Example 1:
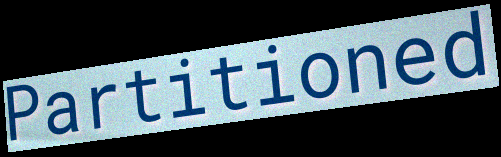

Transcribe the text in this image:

Partitioned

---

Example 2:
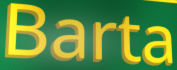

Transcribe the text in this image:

Barta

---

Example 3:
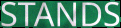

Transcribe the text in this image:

STANDS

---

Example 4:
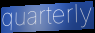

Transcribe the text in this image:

quarterly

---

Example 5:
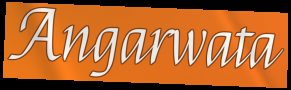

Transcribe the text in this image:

Angarwata